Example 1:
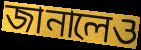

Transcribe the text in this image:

জানালেও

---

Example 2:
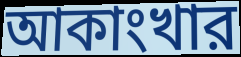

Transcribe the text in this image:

আকাংখার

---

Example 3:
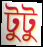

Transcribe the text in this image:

টুটু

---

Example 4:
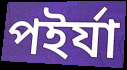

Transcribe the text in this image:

পইর্যা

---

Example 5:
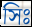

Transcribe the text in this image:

সিঃ